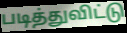
படித்துவிட்டு